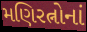
મણિરત્નોનાં